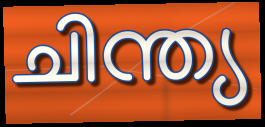
ചിന്ത്യ